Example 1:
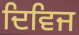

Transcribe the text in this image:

ਦਿਵਿਜ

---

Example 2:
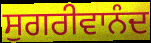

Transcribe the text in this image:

ਸੁਗਰੀਵਾਨੰਦ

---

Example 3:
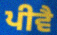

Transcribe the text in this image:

ਪੀਵੈ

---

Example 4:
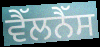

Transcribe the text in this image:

ਵੈੱਲਨੈੱਸ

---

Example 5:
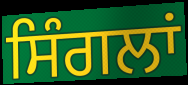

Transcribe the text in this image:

ਸਿੰਗਲਾਂ